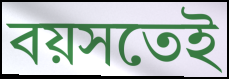
বয়সতেই